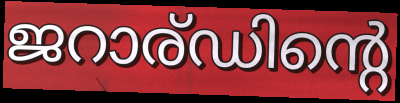
ജറാര്ഡിന്റെ